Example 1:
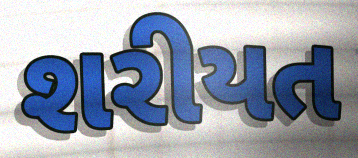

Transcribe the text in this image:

શરીયત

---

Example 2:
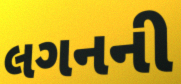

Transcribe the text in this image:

લગનની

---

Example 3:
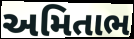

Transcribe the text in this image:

અમિતાભ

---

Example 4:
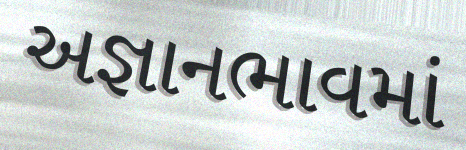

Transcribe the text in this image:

અજ્ઞાનભાવમાં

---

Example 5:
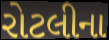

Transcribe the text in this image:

રોટલીના